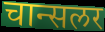
चान्सलर